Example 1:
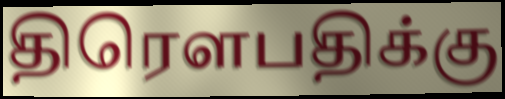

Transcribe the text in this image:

திரௌபதிக்கு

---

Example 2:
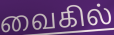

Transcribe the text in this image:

வைகில்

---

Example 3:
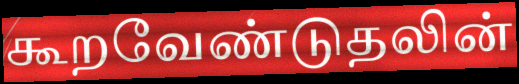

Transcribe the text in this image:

கூறவேண்டுதலின்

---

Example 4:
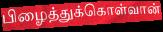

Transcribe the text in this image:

பிழைத்துக்கொள்வான்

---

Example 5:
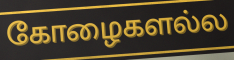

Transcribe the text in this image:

கோழைகளல்ல